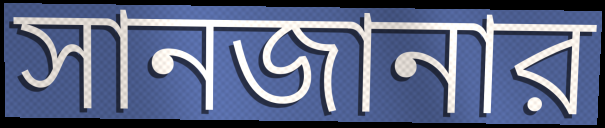
সানজানার